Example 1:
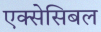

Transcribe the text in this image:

एक्सेसिबल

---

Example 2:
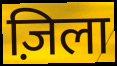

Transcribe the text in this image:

ज़िला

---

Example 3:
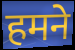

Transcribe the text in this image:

हमने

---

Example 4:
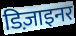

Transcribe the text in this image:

डिज़ाइनर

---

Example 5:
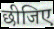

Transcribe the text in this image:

छीजिए